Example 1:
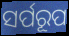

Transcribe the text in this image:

ସର୍ପରୂପ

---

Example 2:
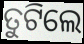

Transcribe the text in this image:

ତୁଟିଲେ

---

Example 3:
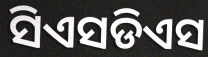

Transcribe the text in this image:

ସିଏସଡିଏସ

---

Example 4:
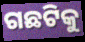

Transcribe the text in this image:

ଗଛଟିକୁ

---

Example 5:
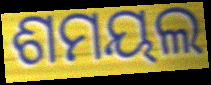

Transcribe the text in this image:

ଶମୟଲ